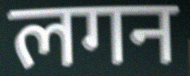
लगन